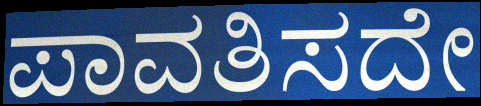
ಪಾವತಿಸದೇ